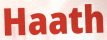
Haath